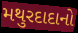
મથુરદાદાનો